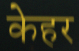
केहर